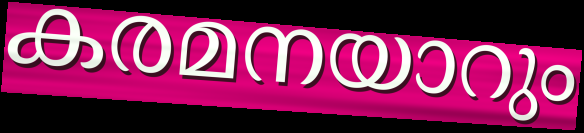
കരമനയാറും